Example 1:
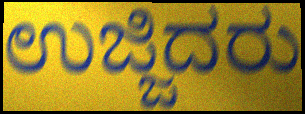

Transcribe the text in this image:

ಉಜ್ಜಿದರು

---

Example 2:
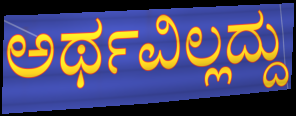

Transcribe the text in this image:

ಅರ್ಥವಿಲ್ಲದ್ದು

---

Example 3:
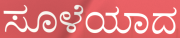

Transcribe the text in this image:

ಸೂಳೆಯಾದ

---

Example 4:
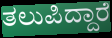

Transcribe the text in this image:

ತಲುಪಿದ್ದಾರೆ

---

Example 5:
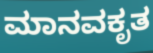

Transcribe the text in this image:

ಮಾನವಕೃತ